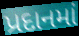
પ્રદાનમાં